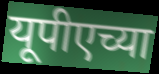
यूपीएच्या